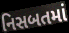
નિસબતમાં